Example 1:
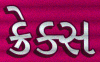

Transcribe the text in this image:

ક્રેક્સ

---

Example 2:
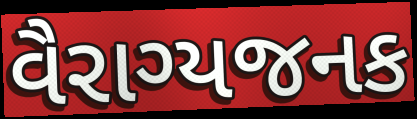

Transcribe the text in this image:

વૈરાગ્યજનક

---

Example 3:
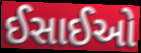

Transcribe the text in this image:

ઈસાઈઓ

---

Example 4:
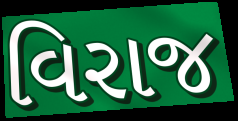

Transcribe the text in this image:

વિરાજ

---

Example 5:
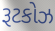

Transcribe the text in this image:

રૂટકોઝ